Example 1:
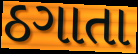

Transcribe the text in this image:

ઠગાતા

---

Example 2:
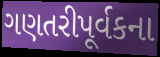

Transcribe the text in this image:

ગણતરીપૂર્વકના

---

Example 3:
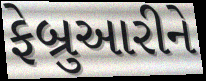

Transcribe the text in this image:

ફેબ્રુઆરીને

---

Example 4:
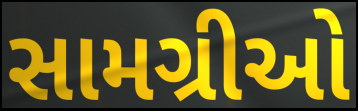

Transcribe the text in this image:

સામગ્રીઓ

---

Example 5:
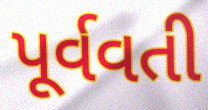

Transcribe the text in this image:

પૂર્વવતી